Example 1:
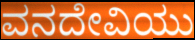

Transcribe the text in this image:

ವನದೇವಿಯು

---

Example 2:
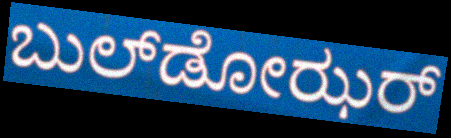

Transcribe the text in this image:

ಬುಲ್‌ಡೋಝರ್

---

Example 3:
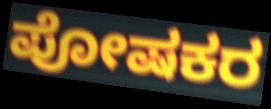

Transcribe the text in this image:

ಪೋಷಕರ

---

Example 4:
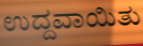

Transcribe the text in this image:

ಉದ್ದವಾಯಿತು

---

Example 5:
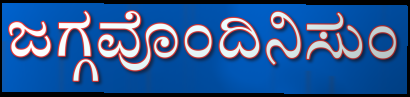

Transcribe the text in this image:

ಜಗ್ಗವೊಂದಿನಿಸುಂ